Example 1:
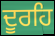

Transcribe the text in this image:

ਦੂਰਹਿ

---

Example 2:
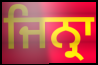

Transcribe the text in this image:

ਜਿਨ੍ਰਾ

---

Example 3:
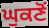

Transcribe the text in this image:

ਘੁਕਣੋਂ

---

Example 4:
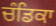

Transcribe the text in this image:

ਚੰਡਿਕਾ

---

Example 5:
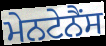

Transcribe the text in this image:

ਮੇਨਟੇਨੈਂਸ